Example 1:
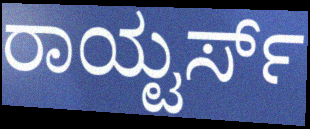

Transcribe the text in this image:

ರಾಯ್ಟರ್ಸ್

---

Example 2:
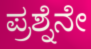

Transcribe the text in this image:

ಪ್ರಶ್ನೆನೇ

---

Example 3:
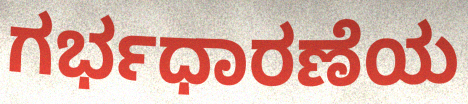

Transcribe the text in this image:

ಗರ್ಭಧಾರಣೆಯ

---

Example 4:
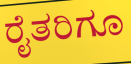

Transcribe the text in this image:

ರೈತರಿಗೂ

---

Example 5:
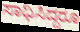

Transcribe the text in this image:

ಸಾಧಿಸಿದ್ದರೂ